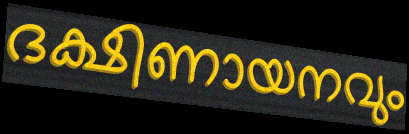
ദക്ഷിണായനവും